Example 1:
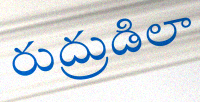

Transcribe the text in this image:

రుద్రుడిలా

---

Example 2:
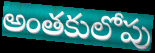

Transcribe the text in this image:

అంతకులోపు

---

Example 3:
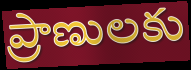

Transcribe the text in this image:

ప్రాణులకు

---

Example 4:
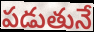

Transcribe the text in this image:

పడుతునే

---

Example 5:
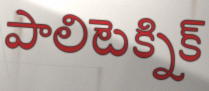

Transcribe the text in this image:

పాలిటెక్నిక్